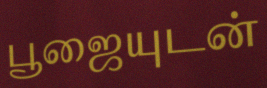
பூஜையுடன்